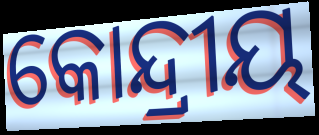
କୋନ୍ଦ୍ରୀୟ